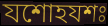
যশোহযশঃ